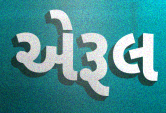
એરૂલ